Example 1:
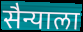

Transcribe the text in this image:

सैन्याला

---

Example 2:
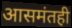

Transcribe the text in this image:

आसमंतही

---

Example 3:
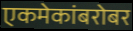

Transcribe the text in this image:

एकमेकांबरोबर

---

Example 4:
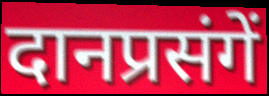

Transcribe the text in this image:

दानप्रसंगें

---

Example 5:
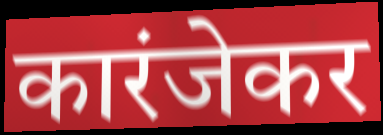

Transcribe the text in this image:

कारंजेकर